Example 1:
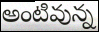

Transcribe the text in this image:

అంటివున్న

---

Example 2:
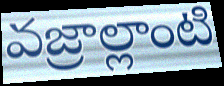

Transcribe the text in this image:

వజ్రాల్లాంటి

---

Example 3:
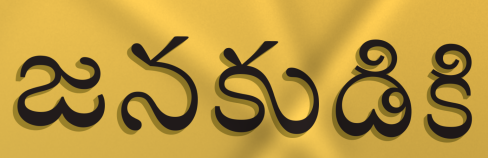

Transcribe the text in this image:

జనకుడికి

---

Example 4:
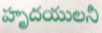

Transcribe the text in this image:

హృదయులనీ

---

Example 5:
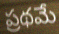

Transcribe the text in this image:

ప్రథమే